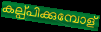
കല്പ്പിക്കുമ്പോള്